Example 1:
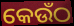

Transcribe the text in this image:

କେଉଁଠ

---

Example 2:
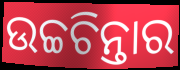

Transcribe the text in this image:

ଉଚ୍ଚଚିନ୍ତାର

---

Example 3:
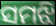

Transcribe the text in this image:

ସମଝି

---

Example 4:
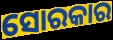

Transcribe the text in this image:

ସୋରକାର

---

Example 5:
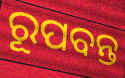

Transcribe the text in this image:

ରୂପବନ୍ତ